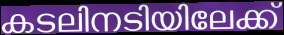
കടലിനടിയിലേക്ക്